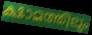
ക്ഷാമത്തിലും